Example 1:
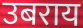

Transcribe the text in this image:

उबराय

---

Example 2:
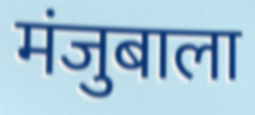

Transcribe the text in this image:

मंजुबाला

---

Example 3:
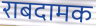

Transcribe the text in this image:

राबदामक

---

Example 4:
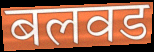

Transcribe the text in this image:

बलवड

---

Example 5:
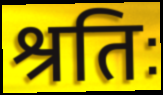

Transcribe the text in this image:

श्रतिः